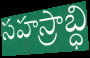
సహస్రాబ్ధి